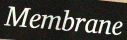
Membrane